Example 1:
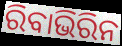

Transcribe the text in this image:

ରିବାଭିରିନ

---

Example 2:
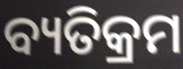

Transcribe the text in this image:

ବ୍ୟତିକ୍ରମ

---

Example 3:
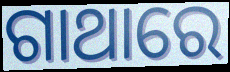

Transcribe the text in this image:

ଗାଥାରେ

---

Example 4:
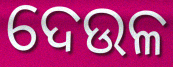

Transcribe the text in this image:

ଦେଉଳ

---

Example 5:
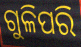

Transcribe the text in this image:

ଗୁଳିପରି